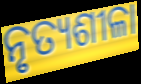
ନୃତ୍ୟଶୀଳା